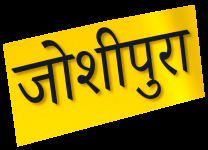
जोशीपुरा